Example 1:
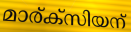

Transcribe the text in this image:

മാര്ക്സിയന്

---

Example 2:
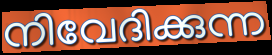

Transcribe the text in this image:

നിവേദിക്കുന്ന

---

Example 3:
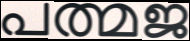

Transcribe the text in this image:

പത്മജ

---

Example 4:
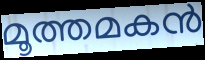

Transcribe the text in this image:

മൂത്തമകൻ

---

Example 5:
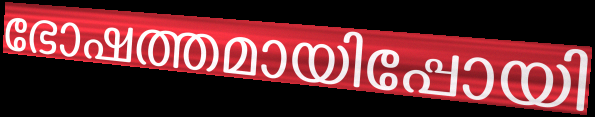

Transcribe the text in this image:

ഭോഷത്തമായിപ്പോയി